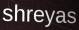
shreyas